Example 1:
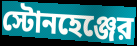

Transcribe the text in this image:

স্টোনহেঞ্জের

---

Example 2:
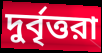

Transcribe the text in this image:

দুর্বৃত্তরা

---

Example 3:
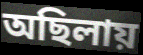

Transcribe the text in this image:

অছিলায়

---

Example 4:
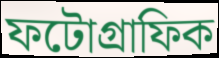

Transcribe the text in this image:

ফটোগ্রাফিক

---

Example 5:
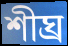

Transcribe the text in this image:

শীঘ্র